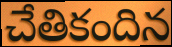
చేతికందిన